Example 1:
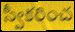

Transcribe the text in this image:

స్వీకరించ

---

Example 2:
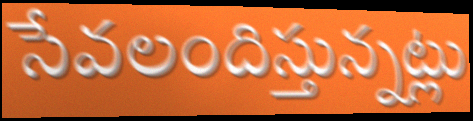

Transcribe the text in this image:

సేవలందిస్తున్నట్లు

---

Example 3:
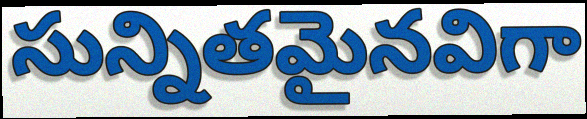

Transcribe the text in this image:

సున్నితమైనవిగా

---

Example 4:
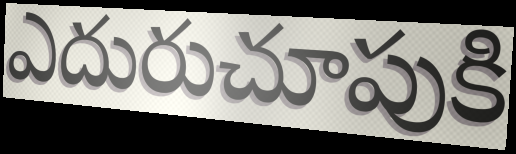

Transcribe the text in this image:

ఎదురుచూపుకి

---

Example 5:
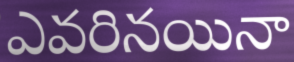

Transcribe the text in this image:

ఎవరినయినా